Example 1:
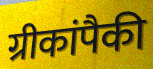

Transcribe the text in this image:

ग्रीकांपैकी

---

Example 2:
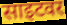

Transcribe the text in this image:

साइटवर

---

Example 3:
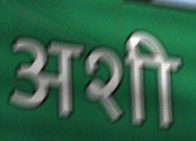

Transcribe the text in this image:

अशी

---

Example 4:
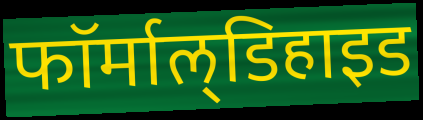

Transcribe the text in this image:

फॉर्माल्डिहाइड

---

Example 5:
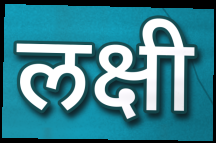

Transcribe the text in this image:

लक्षी